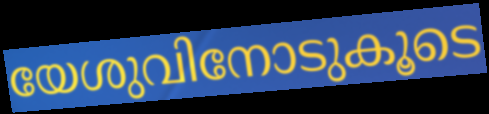
യേശുവിനോടുകൂടെ